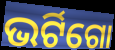
ଭର୍ଟିଗୋ